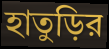
হাতুড়ির